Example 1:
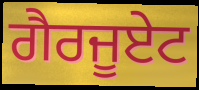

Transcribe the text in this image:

ਗੈਰਜੂਏਟ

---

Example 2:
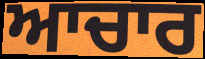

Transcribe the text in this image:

ਆਚਾਰ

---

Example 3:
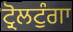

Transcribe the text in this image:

ਟ੍ਰੋਲਟੁੰਗਾ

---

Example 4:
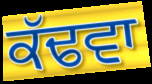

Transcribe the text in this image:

ਕੱਢਵਾ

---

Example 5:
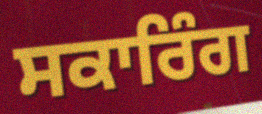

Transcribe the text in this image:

ਸਕਾਰਿੰਗ